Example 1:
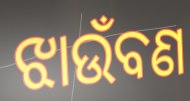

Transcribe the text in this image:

ଝାଉଁବଣ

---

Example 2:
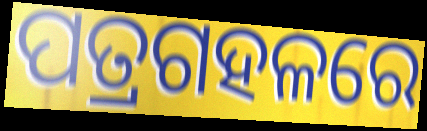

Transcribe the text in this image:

ପତ୍ରଗହଳରେ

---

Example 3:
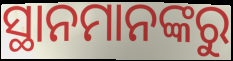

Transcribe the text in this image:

ସ୍ଥାନମାନଙ୍କରୁ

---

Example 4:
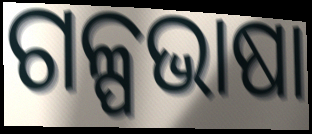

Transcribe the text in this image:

ଗଳ୍ପଭାଷା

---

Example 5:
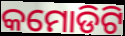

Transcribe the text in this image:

କମୋଡିଟି